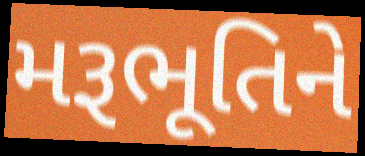
મરૂભૂતિને